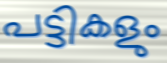
പട്ടികളും